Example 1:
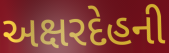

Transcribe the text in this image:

અક્ષરદેહની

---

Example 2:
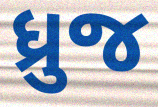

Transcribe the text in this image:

ધ્રુજ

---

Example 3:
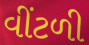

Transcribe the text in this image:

વીંટળી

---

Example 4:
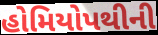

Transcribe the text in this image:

હોમિયોપથીની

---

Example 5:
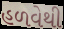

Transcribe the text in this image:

હળવેથી